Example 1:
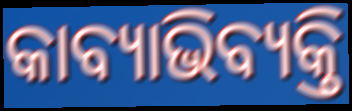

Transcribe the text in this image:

କାବ୍ୟାଭିବ୍ୟକ୍ତି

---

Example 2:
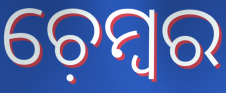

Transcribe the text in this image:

ଚ଼େମ୍ୱର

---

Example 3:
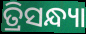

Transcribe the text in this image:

ତ୍ରିସନ୍ଧ୍ୟା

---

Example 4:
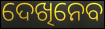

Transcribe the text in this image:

ଦେଖିନେବ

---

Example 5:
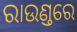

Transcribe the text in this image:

ରାଉଣ୍ଡରେ